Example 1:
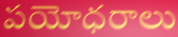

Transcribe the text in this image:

పయోధరాలు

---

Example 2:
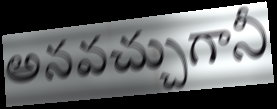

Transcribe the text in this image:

అనవచ్చుగానీ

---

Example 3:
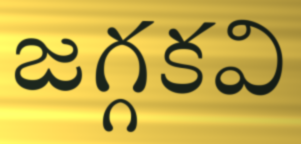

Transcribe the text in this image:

జగ్గకవి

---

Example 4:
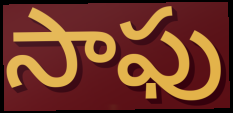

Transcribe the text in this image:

సాఫు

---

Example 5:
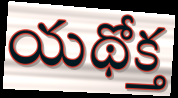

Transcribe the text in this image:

యథోక్త